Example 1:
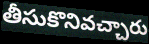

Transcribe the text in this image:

తీసుకొనివచ్చారు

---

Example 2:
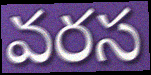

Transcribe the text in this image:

వరస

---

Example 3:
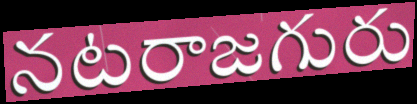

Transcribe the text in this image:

నటరాజగురు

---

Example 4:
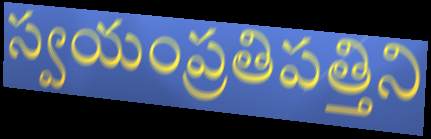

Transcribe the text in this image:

స్వయంప్రతిపత్తిని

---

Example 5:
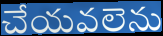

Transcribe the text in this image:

చేయవలెను